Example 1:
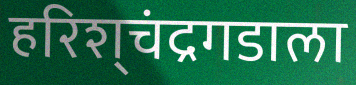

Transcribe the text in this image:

हरिश्चंद्रगडाला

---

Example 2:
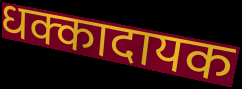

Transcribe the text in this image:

धक्‍कादायक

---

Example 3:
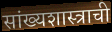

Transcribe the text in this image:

सांख्यशास्त्राची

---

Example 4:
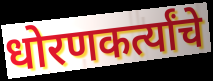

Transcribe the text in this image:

धोरणकर्त्यांचे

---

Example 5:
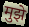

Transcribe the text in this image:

मुझे